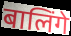
बालिंगे